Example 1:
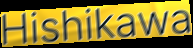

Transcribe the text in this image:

Hishikawa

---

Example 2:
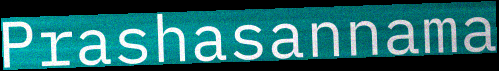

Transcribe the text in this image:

Prashasannama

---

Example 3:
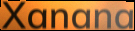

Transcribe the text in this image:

Xanana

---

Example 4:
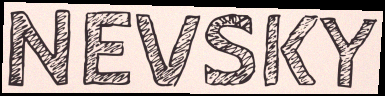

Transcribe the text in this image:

NEVSKY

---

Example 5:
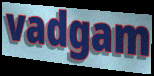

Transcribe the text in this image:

vadgam